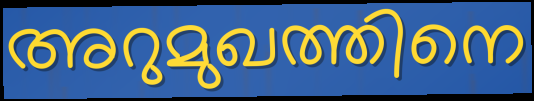
അറുമുഖത്തിനെ